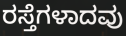
ರಸ್ತೆಗಳಾದವು